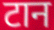
टान